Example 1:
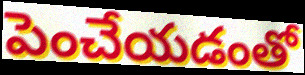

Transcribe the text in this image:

పెంచేయడంతో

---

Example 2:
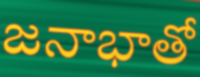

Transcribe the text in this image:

జనాభాతో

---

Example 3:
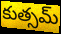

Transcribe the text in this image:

కుత్సమ్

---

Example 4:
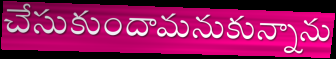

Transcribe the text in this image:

చేసుకుందామనుకున్నాను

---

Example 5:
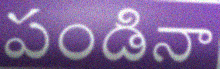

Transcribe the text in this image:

పండినా